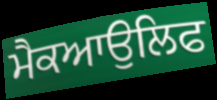
ਮੈਕਆਉਲਿਫ